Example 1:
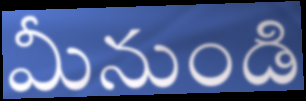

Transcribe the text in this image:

మీనుండి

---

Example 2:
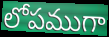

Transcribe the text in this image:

లోపముగా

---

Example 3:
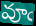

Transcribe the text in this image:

వూఁ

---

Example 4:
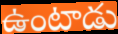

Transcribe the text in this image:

ఉంటాడు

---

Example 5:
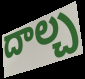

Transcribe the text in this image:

దాల్చ